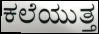
ಕಲೆಯುತ್ತ